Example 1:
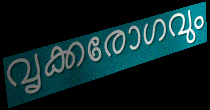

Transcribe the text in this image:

വൃക്കരോഗവും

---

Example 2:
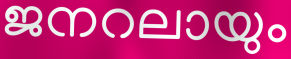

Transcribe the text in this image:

ജനറലായും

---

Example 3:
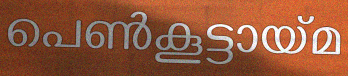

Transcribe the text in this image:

പെൺകൂട്ടായ്മ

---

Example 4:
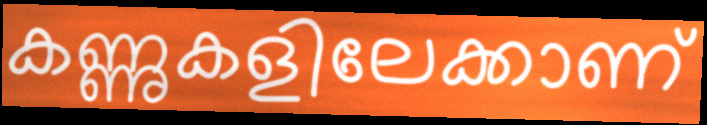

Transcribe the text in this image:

കണ്ണുകളിലേക്കാണ്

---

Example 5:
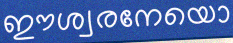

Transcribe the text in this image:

ഈശ്വരനേയൊ